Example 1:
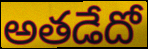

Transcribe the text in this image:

అతడేదో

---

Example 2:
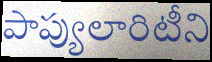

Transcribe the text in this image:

పాప్యులారిటీని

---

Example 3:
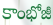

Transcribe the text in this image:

కాంభోజీ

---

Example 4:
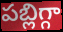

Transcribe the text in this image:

పబ్లిగ్గా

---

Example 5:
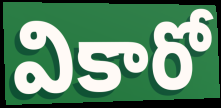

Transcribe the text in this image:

వికారో